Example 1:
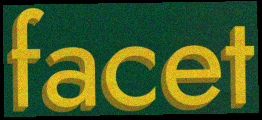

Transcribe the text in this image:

facet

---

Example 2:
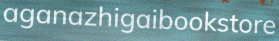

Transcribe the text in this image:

aganazhigaibookstore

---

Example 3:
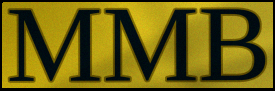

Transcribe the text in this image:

MMB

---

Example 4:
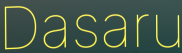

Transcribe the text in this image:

Dasaru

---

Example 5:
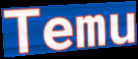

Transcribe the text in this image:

Temu